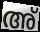
അ്